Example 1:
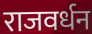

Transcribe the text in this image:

राजवर्धन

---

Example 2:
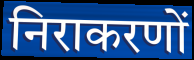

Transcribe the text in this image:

निराकरणों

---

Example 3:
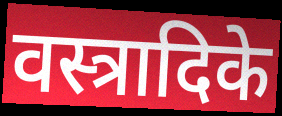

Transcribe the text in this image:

वस्त्रादिके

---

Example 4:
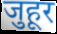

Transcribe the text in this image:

जुहूर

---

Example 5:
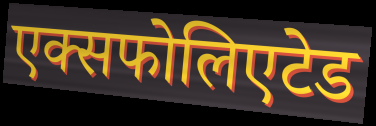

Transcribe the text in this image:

एक्सफोलिएटेड